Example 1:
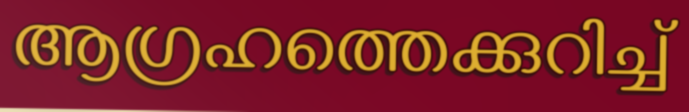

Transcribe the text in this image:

ആഗ്രഹത്തെക്കുറിച്ച്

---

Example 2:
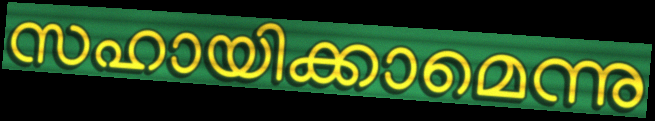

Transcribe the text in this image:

സഹായിക്കാമെന്നു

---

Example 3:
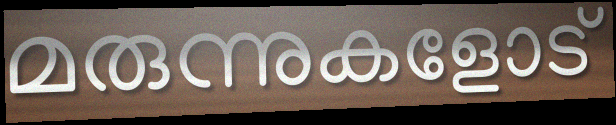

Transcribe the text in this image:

മരുന്നുകളോട്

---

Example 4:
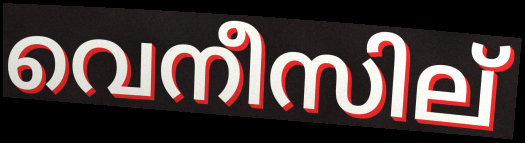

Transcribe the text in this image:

വെനീസില്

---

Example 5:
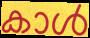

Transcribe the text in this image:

കാൾ